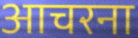
आचरना